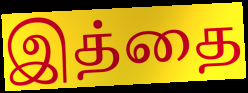
இத்தை